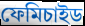
ফেমিচাইড